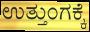
ಉತ್ತುಂಗಕ್ಕೆ